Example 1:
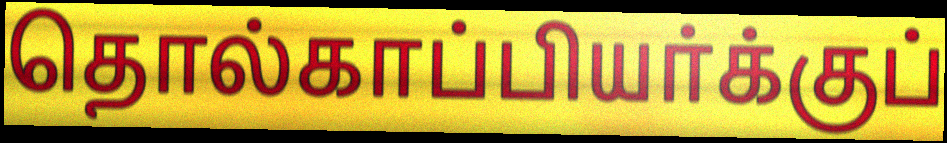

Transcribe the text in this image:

தொல்காப்பியர்க்குப்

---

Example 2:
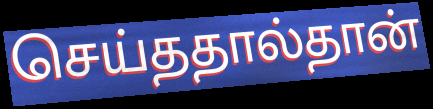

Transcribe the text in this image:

செய்ததால்தான்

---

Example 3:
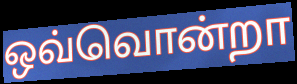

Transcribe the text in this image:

ஒவ்வொன்றா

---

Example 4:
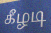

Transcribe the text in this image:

கீழடி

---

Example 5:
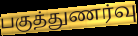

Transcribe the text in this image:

பகுத்துணர்வு